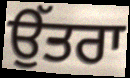
ਉੱਤਰਾ